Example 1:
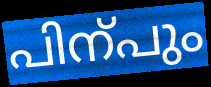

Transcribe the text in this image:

പിന്പും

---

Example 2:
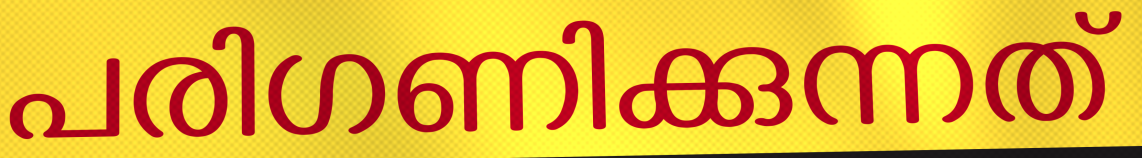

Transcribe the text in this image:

പരിഗണിക്കുന്നത്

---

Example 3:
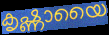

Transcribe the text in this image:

കൃഷ്ണായൈ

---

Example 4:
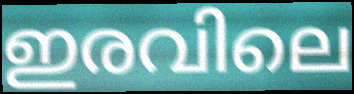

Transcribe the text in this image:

ഇരവിലെ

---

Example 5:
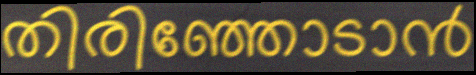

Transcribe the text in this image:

തിരിഞ്ഞോടാൻ